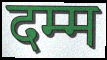
दम्म